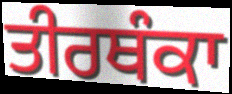
ਤੀਰਥੰਕਾ